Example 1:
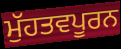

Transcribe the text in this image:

ਮੁੱਹਤਵਪੂਰਨ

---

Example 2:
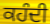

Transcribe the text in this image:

ਕਹੰਦੀ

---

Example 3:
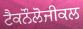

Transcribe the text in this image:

ਟੈਕਨੌਲੋਜੀਕਲ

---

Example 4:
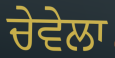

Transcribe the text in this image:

ਚੇਵੇਲਾ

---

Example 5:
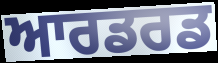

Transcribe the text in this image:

ਆਰਡਰਡ